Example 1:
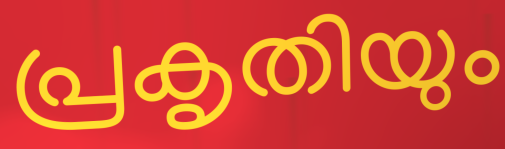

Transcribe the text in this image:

പ്രകൃതിയും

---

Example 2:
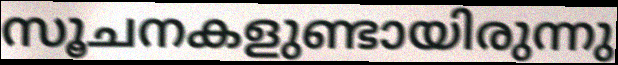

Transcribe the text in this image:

സൂചനകളുണ്ടായിരുന്നു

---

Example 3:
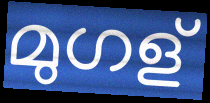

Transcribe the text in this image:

മുഗള്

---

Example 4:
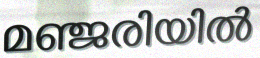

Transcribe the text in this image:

മഞ്ജരിയിൽ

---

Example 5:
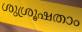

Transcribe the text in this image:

ശുശ്രൂഷതാം